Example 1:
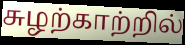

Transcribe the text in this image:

சுழற்காற்றில்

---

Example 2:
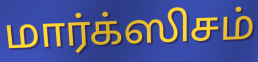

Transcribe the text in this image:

மார்க்ஸிசம்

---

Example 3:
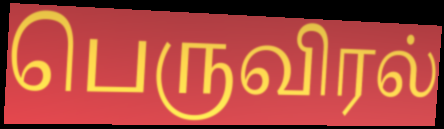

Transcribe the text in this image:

பெருவிரல்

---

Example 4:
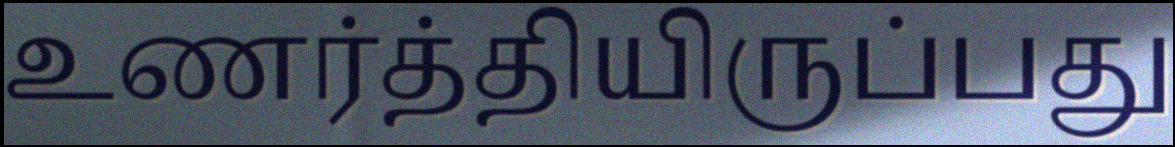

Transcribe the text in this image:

உணர்த்தியிருப்பது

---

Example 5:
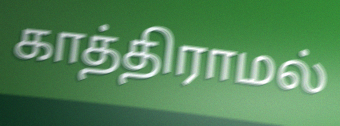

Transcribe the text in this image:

காத்திராமல்